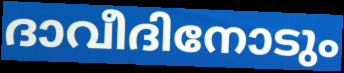
ദാവീദിനോടും